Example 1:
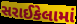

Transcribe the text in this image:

સરાઈકેલામાં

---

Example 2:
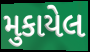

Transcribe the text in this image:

મુકાયેલ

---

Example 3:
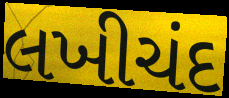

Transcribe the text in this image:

લખીચંદ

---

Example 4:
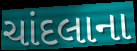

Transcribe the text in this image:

ચાંદલાના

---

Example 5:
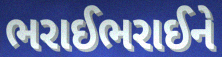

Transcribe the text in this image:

ભરાઈભરાઈને